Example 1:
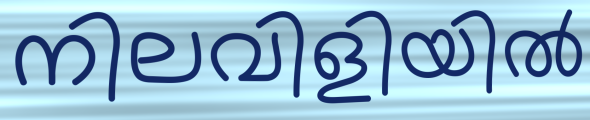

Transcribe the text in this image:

നിലവിളിയിൽ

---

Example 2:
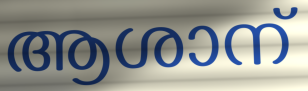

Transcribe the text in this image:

ആശാന്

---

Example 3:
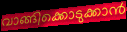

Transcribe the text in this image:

വാങ്ങിക്കൊടുക്കാൻ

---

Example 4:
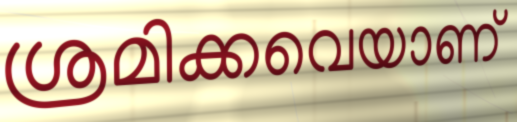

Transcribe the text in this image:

ശ്രമിക്കവെയാണ്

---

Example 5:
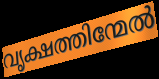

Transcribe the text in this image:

വൃക്ഷത്തിന്മേൽ